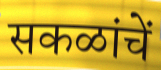
सकळांचें